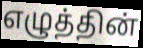
எழுத்தின்